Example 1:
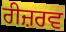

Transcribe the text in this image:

ਰੀਜ਼ਰਵ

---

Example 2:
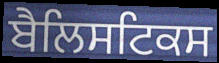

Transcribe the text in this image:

ਬੈਲਿਸਟਿਕਸ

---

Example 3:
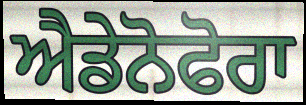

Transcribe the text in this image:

ਐਡੇਨੋਫੋਰਾ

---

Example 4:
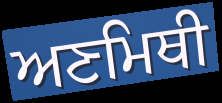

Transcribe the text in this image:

ਅਣਮਿਥੀ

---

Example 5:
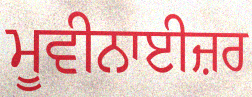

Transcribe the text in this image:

ਮੂਵੀਨਾਈਜ਼ਰ